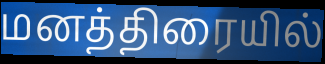
மனத்திரையில்